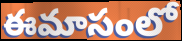
ఈమాసంలో